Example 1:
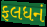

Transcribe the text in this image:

ફલધનં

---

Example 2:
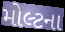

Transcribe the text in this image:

મોલ્ટના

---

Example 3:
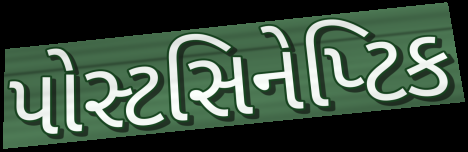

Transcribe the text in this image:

પોસ્ટસિનેપ્ટિક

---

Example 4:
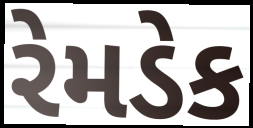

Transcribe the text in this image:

રેમડેક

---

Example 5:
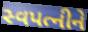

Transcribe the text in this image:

સ્વપત્નીને